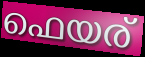
ഫെയര്